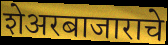
शेअरबाजाराचे